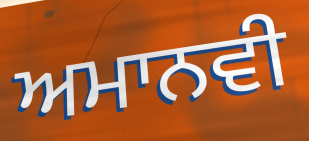
ਅਮਾਨਵੀ